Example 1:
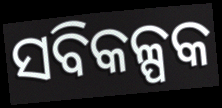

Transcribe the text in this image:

ସବିକଳ୍ପକ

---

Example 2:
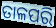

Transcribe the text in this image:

ତାଳପରି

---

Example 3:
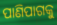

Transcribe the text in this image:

ପାଣିପାଗକୁ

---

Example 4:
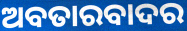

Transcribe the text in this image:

ଅବତାରବାଦର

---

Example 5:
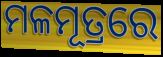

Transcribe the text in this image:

ମଳମୂତ୍ରରେ